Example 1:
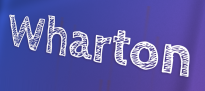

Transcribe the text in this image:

Wharton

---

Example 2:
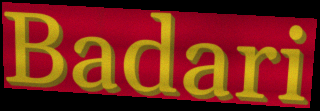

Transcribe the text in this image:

Badari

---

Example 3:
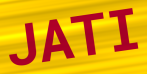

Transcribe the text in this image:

JATI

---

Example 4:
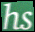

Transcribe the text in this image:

hs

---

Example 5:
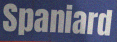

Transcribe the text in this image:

Spaniard